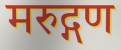
मरुद्गण